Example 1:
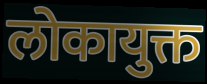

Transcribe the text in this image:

लोकायुक्त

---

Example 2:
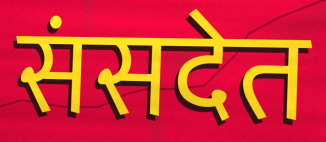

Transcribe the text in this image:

संसदेत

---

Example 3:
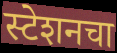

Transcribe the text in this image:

स्टेशनचा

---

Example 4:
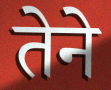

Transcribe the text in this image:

तेने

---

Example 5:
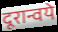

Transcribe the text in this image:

दूरान्वये